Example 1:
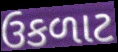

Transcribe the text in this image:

ઉકળાટ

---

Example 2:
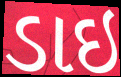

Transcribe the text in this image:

ડાઇ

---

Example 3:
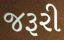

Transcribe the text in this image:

જરૂરી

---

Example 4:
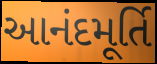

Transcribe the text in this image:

આનંદમૂર્તિ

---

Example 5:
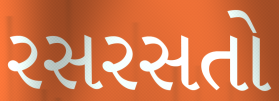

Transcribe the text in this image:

રસરસતો